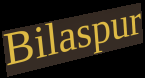
Bilaspur